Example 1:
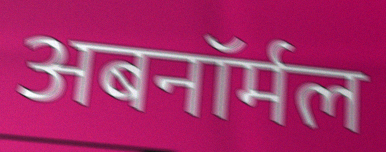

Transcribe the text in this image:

अबनॉर्मल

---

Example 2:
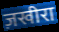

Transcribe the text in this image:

ज़खीरा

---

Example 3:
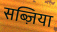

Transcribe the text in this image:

सब्ज़िया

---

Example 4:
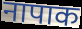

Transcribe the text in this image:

नापाक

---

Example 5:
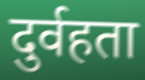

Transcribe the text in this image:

दुर्वहता